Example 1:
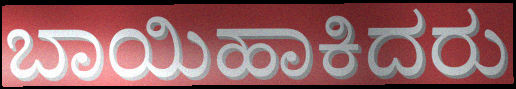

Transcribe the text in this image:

ಬಾಯಿಹಾಕಿದರು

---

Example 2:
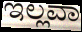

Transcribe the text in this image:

ಇಲ್ಲವಾ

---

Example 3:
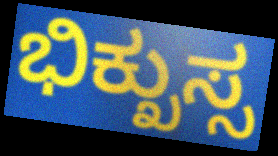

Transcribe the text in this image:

ಭಿಕ್ಖುಸ್ಸ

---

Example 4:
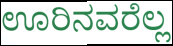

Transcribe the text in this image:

ಊರಿನವರೆಲ್ಲ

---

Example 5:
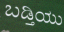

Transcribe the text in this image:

ಬಡ್ತಿಯು